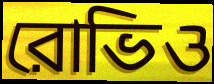
রোভিও